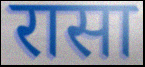
रासा